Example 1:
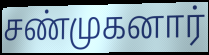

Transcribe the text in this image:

சண்முகனார்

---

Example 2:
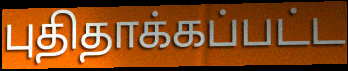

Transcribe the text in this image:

புதிதாக்கப்பட்ட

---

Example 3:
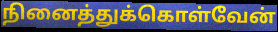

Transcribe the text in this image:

நினைத்துக்கொள்வேன்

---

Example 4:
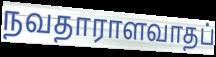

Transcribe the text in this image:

நவதாராளவாதப்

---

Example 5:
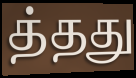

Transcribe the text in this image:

த்தது